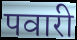
पवारी